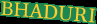
BHADURI